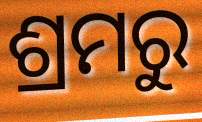
ଶ୍ରମରୁ